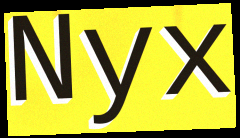
Nyx